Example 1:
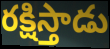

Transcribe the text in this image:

రక్షిస్తాడు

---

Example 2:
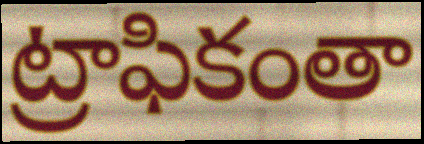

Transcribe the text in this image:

ట్రాఫికంతా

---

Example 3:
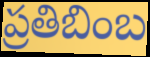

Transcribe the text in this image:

ప్రతిబింబ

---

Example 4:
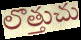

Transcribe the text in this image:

లొత్తుచు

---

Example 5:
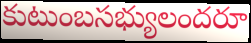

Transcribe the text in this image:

కుటుంబసభ్యులందరూ